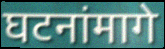
घटनांमागे